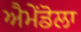
ਐਮੇਂਡੋਲਾ